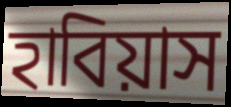
হাবিয়াস